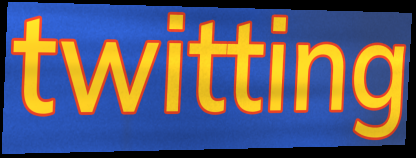
twitting